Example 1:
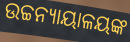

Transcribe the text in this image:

ଉଚ୍ଚନ୍ୟାୟାଳୟଙ୍କ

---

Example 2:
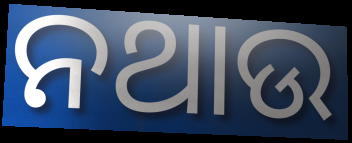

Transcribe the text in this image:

ନଥାଉ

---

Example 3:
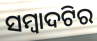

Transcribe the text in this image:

ସମ୍ବାଦଟିର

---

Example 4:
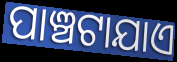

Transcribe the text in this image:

ପାଞ୍ଚଟାଯାଏ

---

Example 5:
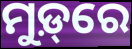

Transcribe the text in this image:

ମୁଡ଼୍‌ରେ